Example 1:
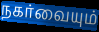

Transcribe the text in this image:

நகர்வையும்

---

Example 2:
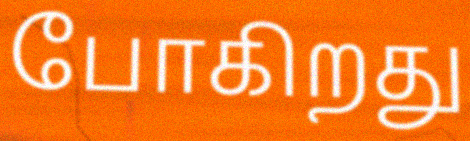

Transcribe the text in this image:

போகிறது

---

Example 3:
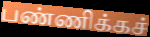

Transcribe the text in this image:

பண்ணிக்கச்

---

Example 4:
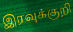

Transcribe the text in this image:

இரவுக்குறி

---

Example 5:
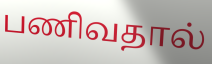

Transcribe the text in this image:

பணிவதால்